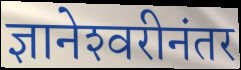
ज्ञानेश्वरीनंतर